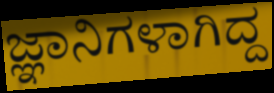
ಜ್ಞಾನಿಗಳಾಗಿದ್ದ